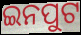
ଇନପୁଟ